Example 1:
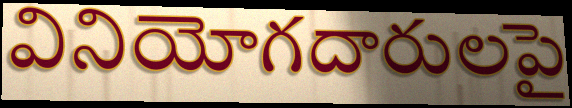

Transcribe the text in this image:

వినియోగదారులపై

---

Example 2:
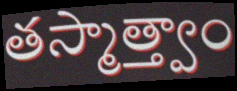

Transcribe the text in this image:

తస్మాత్త్వాం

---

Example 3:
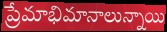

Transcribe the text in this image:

ప్రేమాభిమానాలున్నాయి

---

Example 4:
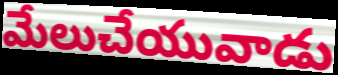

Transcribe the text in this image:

మేలుచేయువాడు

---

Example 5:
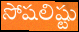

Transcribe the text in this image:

సోషలిష్టు